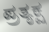
ಪ್ರತ್ಯಕ್ಷ